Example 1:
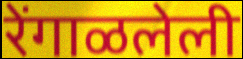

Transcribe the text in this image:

रेंगाळलेली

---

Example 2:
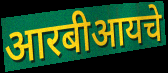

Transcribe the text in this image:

आरबीआयचे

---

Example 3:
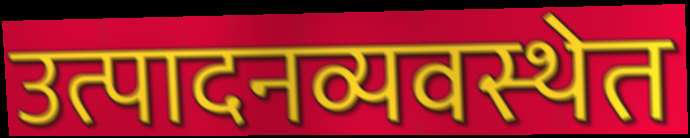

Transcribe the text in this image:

उत्पादनव्यवस्थेत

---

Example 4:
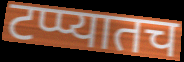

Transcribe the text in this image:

टप्प्यातच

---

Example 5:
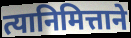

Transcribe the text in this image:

त्यानिमित्ताने